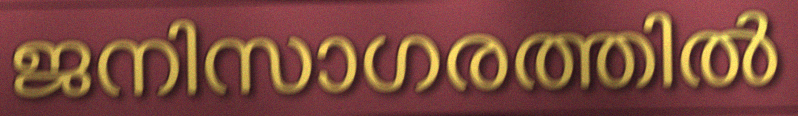
ജനിസാഗരത്തിൽ